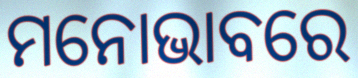
ମନୋଭାବରେ